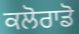
ਕਲੋਰਾਡੋ